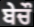
ਬੇਚੌ